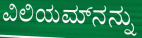
ವಿಲಿಯಮ್‌ನನ್ನು